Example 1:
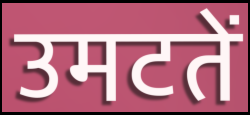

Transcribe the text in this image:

उमटतें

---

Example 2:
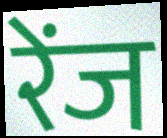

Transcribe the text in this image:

रेंज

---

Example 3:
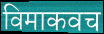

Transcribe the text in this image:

विमाकवच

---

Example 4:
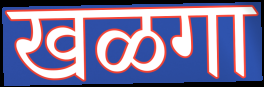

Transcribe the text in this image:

खळगा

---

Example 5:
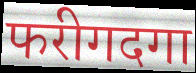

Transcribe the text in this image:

फरीगदगा